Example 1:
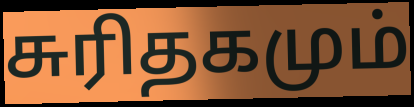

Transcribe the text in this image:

சுரிதகமும்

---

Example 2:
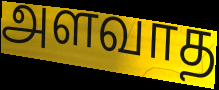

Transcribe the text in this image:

அளவாத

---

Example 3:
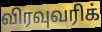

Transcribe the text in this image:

விரவுவரிக்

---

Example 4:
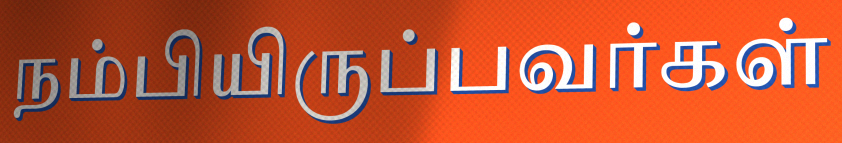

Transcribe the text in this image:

நம்பியிருப்பவர்கள்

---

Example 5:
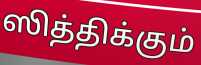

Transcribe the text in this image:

ஸித்திக்கும்